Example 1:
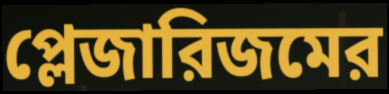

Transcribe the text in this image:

প্লেজারিজমের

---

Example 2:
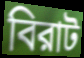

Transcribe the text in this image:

বিরাট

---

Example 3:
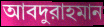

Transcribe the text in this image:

আবদুরাহমান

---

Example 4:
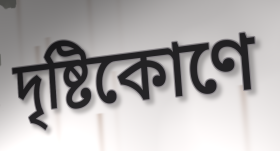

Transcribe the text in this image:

দৃষ্টিকোণে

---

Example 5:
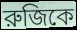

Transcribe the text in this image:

রুজিকে